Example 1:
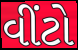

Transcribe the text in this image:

વીંટો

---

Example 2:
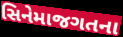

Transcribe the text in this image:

સિનેમાજગતના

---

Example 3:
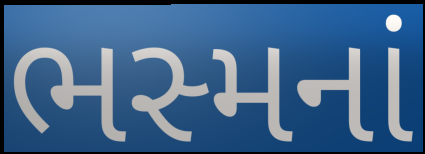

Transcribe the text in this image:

ભસ્મનાં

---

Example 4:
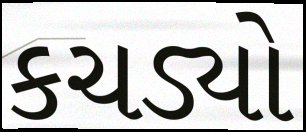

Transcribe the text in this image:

કચડ્યો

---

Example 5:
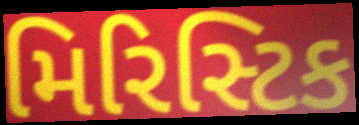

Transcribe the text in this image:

મિરિસ્ટિક